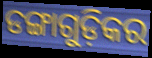
ଡଙ୍ଗାଗୁଡ଼ିକର